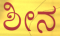
ಶೀನ